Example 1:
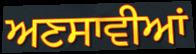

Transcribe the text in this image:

ਅਣਸਾਵੀਆਂ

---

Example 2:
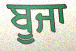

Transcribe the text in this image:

ਬੂਜਾ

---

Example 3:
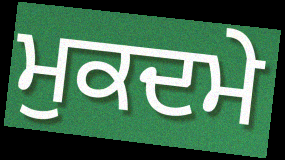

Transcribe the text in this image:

ਮੁਕਦਮੇ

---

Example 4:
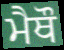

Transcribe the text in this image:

ਮੈਥੌ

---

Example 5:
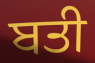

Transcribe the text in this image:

ਬਤੀ